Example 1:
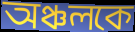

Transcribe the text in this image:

অঞ্চলকে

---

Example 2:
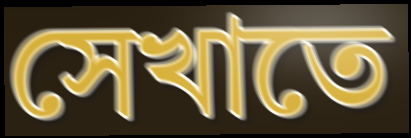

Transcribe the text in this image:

সেখাতে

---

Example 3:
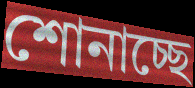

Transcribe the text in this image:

শোনাচ্ছে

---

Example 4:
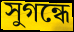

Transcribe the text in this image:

সুগন্ধে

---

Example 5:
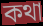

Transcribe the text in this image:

কথা